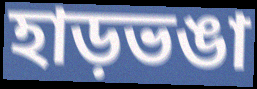
হাড়ভঙা